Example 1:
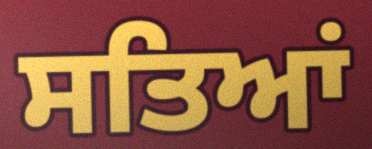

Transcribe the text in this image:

ਸਤਿਆਂ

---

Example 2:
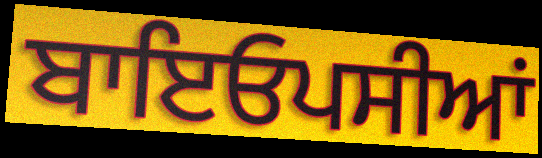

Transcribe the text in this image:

ਬਾਇਓਪਸੀਆਂ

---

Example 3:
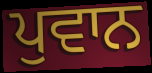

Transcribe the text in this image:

ਪੁਵਾਨ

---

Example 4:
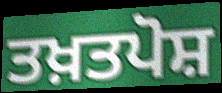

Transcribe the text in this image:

ਤਖ਼ਤਪੋਸ਼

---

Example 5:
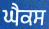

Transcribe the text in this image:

ਘੈਕਸ